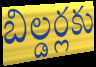
బిల్డర్లకు